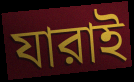
যারাই